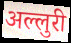
अल्लुरी